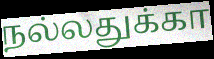
நல்லதுக்கா